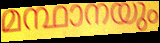
മന്ഥാനയും